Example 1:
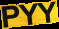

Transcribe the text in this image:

PYY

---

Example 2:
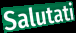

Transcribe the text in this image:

Salutati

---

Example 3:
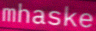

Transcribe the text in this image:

mhaske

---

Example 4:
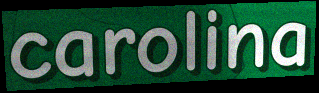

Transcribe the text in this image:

carolina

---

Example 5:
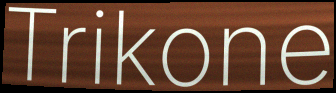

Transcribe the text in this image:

Trikone